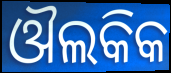
ଔଲକିକ